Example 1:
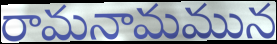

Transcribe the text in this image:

రామనామమున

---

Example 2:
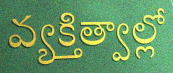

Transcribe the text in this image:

వ్యక్తిత్వాల్లో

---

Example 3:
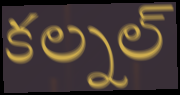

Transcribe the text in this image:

కల్నల్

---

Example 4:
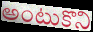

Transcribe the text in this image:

అంటుకొని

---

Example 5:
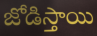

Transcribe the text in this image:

జోడిస్తాయి